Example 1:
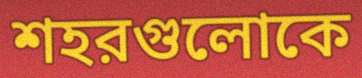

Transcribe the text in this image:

শহরগুলোকে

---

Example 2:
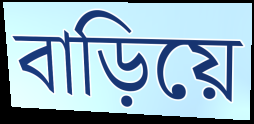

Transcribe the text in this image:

বাড়িয়ে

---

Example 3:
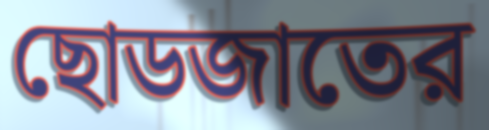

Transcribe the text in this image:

ছোডজাতের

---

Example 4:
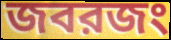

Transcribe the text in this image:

জবরজং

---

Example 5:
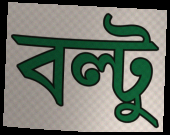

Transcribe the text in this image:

বল্টু